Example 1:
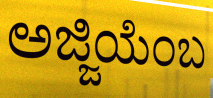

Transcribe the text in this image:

ಅಜ್ಜಿಯೆಂಬ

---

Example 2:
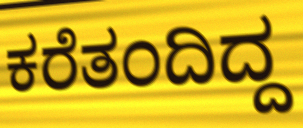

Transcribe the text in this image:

ಕರೆತಂದಿದ್ದ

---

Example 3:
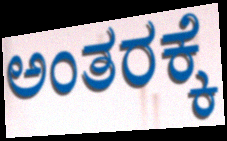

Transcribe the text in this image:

ಅಂತರಕ್ಕೆ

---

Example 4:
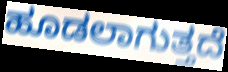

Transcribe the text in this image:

ಹೂಡಲಾಗುತ್ತದೆ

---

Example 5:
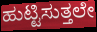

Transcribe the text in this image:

ಹುಟ್ಟಿಸುತ್ತಲೇ